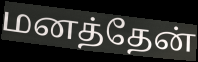
மனத்தேன்